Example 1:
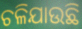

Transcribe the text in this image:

ଚଳିଯାଉଛି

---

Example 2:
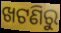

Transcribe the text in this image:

ଖଟଣିରୁ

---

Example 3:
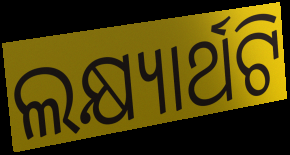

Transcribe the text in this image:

ଲକ୍ଷ୍ୟାର୍ଥଟି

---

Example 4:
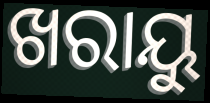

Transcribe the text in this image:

ଖରାୟୁ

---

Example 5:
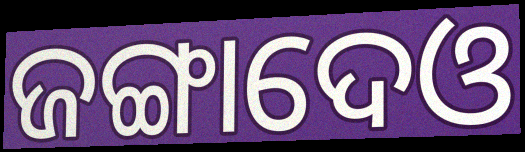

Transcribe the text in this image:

ଜଙ୍ଗାଦେଓ